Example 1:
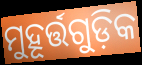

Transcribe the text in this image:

ମୁହୂର୍ତ୍ତଗୁଡ଼ିକ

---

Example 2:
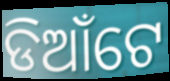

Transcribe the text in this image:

ଡିଆଁଟେ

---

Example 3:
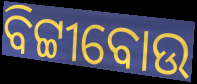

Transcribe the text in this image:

ବିଟ୍ଟୀବୋଉ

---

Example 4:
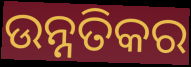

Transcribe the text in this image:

ଉନ୍ନତିକର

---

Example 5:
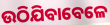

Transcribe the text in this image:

ଉଠିଯିବାବେଳେ